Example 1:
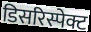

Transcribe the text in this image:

डिसरिस्पेक्ट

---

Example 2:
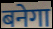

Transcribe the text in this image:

बनेगा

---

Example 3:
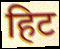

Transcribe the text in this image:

हिट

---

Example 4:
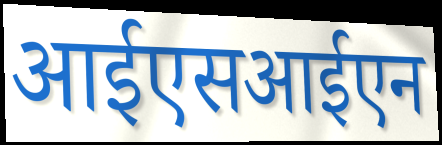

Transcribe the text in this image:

आईएसआईएन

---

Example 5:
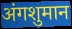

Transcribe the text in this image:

अंगशुमान